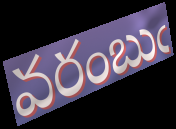
వరంబుఁ